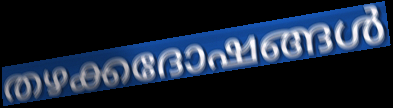
തഴക്കദോഷങ്ങൾ